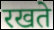
रखते